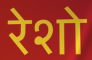
रेशो